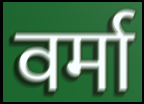
वर्मा